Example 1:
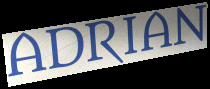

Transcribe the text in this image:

ADRIAN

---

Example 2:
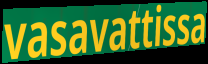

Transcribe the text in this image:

vasavattissa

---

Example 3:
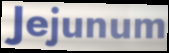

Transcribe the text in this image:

Jejunum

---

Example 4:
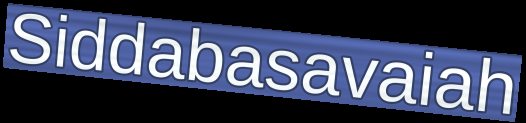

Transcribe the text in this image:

Siddabasavaiah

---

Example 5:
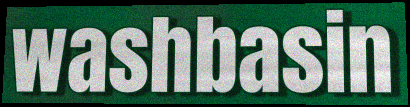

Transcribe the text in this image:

washbasin